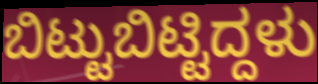
ಬಿಟ್ಟುಬಿಟ್ಟಿದ್ದಳು